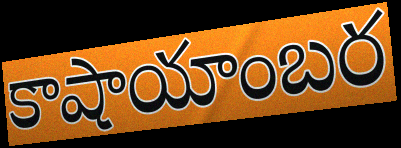
కాషాయాంబర